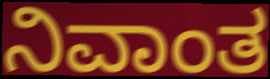
ನಿವಾಂತ